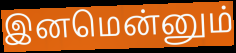
இனமென்னும்